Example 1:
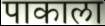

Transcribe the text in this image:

पाकाला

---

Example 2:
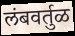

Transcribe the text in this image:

लंबवर्तुळ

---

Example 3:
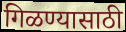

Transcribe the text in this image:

गिळण्यासाठी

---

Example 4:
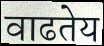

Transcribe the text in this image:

वाढतेय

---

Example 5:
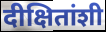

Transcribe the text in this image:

दीक्षितांशी